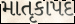
માતૃકાપદ